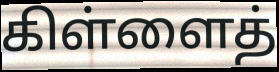
கிள்ளைத்